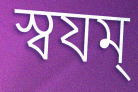
স্বযম্